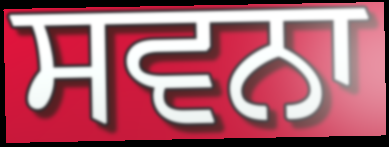
ਸਵਨਾ